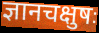
ज्ञानचक्षुषः